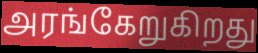
அரங்கேறுகிறது